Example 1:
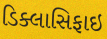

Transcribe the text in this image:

ડિક્લાસિફાઇ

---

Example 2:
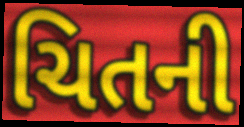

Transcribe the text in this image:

ચિતની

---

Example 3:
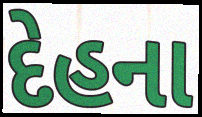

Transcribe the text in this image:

દેહના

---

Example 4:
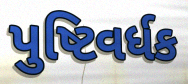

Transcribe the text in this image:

પુષ્ટિવર્ધક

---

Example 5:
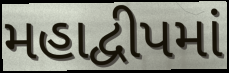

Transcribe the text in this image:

મહાદ્વીપમાં